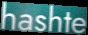
hashte